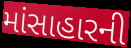
માંસાહારની